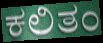
ಕಲಿತಂ